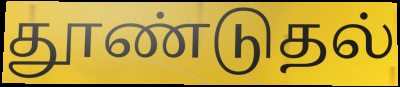
தூண்டுதல்